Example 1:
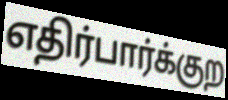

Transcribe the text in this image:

எதிர்பார்க்குற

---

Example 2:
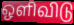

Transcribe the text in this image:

ஒளிவிடு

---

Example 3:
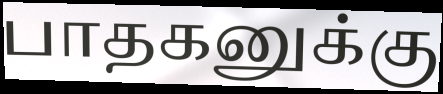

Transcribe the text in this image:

பாதகனுக்கு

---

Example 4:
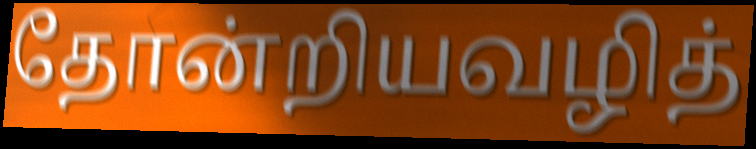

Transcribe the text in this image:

தோன்றியவழித்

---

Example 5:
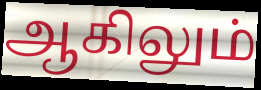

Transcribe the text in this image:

ஆகிலும்